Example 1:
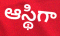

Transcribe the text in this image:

ఆస్థిగా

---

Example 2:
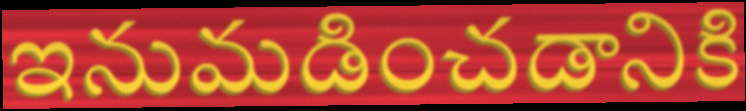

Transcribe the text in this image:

ఇనుమడించడానికి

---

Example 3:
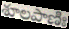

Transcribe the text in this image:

శూలపాణిః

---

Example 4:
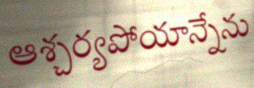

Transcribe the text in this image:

ఆశ్చర్యపోయాన్నేను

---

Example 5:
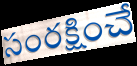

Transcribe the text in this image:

సంరక్షించే